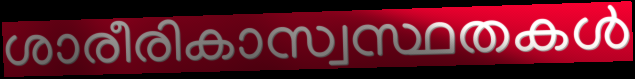
ശാരീരികാസ്വസ്ഥതകൾ